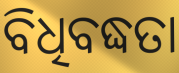
ବିଧିବଦ୍ଧତା